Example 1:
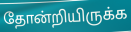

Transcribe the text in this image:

தோன்றியிருக்க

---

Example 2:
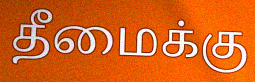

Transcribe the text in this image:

தீமைக்கு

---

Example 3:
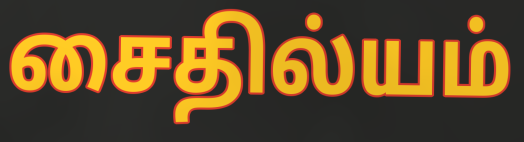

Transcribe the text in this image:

சைதில்யம்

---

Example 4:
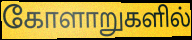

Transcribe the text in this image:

கோளாறுகளில்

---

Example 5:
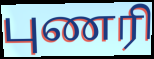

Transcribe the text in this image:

புணரி